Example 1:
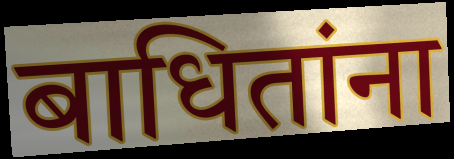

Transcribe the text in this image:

बाधितांना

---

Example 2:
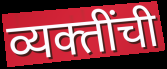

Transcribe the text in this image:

व्यक्‍तींची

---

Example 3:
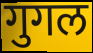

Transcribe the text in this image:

गुगल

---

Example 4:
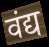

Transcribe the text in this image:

वंद्य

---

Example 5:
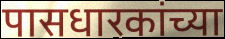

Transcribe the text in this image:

पासधारकांच्या